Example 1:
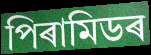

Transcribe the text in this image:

পিৰামিডৰ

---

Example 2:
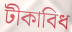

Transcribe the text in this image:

টীকাবিধ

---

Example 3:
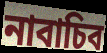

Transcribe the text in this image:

নাবাচিব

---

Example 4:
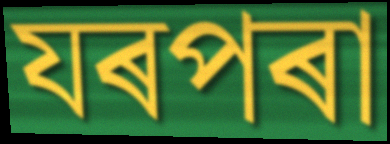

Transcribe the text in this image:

যৰপৰা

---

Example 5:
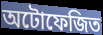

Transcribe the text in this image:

অটোফেজিত